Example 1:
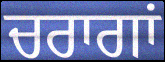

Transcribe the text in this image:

ਚਰਾਗਾਂ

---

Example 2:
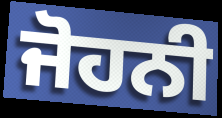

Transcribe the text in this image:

ਜੋਹਨੀ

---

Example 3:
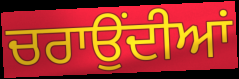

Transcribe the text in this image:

ਚਰਾਉਂਦੀਆਂ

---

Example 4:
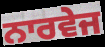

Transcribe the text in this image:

ਨਾਰਵੇਜ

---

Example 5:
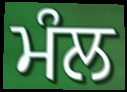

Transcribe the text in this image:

ਮੰਲ